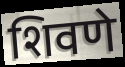
शिवणे